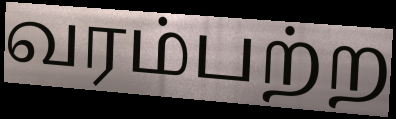
வரம்பற்ற